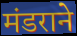
मंडराने